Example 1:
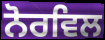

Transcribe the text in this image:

ਨੋਰਵਿਲ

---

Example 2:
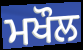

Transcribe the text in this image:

ਮਖੌਲ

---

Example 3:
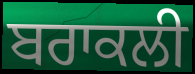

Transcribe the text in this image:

ਬਰਾਕਲੀ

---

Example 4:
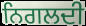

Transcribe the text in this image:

ਨਿਗਲਦੀ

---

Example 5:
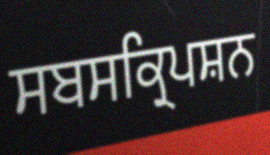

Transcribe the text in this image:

ਸਬਸਕ੍ਰਿਪਸ਼ਨ